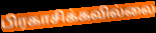
பிரகாசிக்கவில்லை